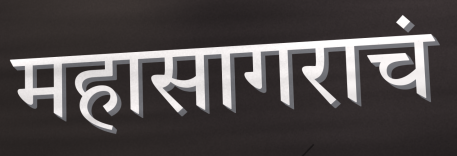
महासागराचं